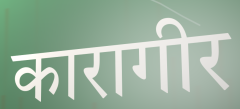
कारागीर